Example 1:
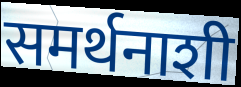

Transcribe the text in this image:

समर्थनाशी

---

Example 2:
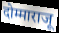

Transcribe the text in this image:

दोम्माराजू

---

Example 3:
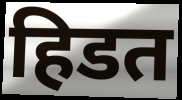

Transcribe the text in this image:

हिडत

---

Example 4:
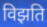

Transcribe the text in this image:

विझति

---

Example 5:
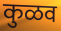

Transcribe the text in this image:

कुळव